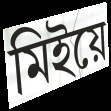
মিইয়ে